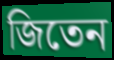
জিতেন